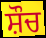
ਸ਼ੌਚ